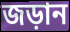
জড়ান